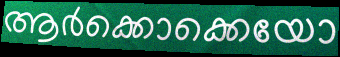
ആർക്കൊക്കെയോ